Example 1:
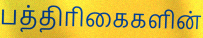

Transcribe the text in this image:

பத்திரிகைகளின்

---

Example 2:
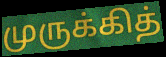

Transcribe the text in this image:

முருக்கித்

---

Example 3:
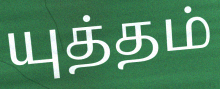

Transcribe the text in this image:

யுத்தம்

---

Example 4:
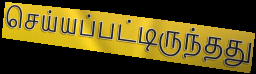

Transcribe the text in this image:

செய்யப்பட்டிருந்தது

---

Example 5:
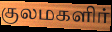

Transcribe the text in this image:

குலமகளிர்